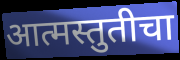
आत्मस्तुतीचा